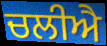
ਚਲੀਐ